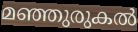
മഞ്ഞുരുകൽ